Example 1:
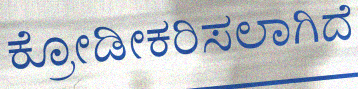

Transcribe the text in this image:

ಕ್ರೋಡೀಕರಿಸಲಾಗಿದೆ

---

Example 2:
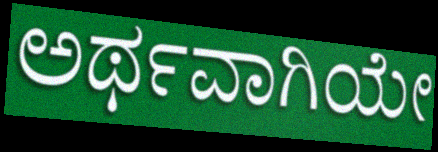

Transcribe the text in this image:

ಅರ್ಥವಾಗಿಯೇ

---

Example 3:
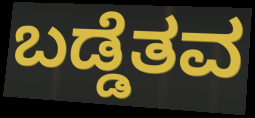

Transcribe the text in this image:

ಬಡ್ಡೆತವ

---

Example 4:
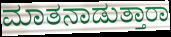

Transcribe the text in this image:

ಮಾತನಾಡುತ್ತಾರಾ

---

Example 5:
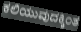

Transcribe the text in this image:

ಕಲಿಯುವುದಕ್ಕಿಂತ